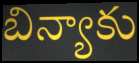
బిన్యాకు